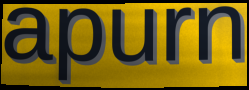
apurn